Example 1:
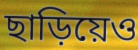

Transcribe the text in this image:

ছাড়িয়েও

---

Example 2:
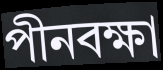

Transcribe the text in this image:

পীনবক্ষা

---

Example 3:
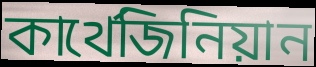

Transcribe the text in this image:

কার্থেজিনিয়ান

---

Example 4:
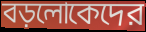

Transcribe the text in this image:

বড়লোকেদের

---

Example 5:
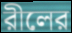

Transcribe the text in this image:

রীলের